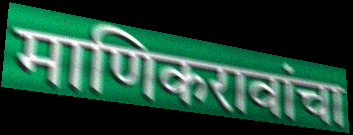
माणिकरावांचा